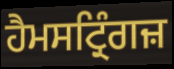
ਹੈਮਸਟ੍ਰਿੰਗਜ਼